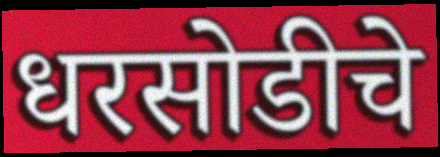
धरसोडीचे